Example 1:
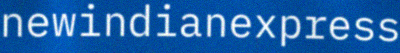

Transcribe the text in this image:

newindianexpress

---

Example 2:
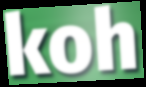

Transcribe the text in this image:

koh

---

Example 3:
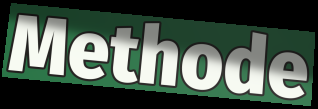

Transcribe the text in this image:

Methode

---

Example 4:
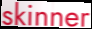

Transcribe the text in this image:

skinner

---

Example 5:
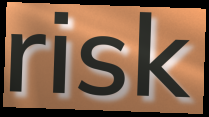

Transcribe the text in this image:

risk